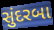
સુંદરબા